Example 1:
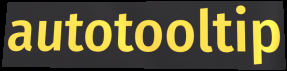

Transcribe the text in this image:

autotooltip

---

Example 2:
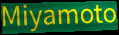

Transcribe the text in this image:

Miyamoto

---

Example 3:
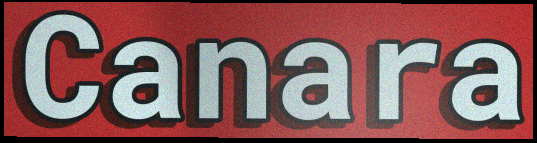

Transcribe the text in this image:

Canara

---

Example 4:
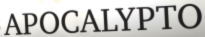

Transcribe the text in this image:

APOCALYPTO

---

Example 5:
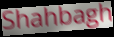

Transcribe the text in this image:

Shahbagh